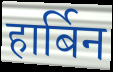
हार्बिन